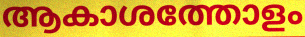
ആകാശത്തോളം